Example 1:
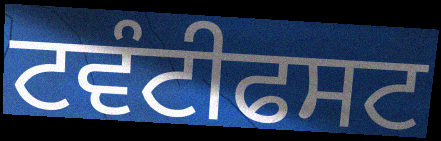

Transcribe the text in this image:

ਟਵੰਟੀਫਸਟ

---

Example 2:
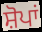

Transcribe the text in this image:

ਸ਼ੋਪਾਂ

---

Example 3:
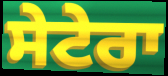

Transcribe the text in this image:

ਸੇਟੇਰਾ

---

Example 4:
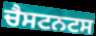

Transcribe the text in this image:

ਚੈਸਟਨਟਸ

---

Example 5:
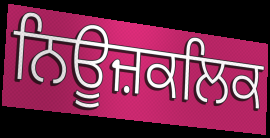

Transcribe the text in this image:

ਨਿਊਜ਼ਕਲਿਕ